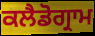
ਕਲੈਡੋਗ੍ਰਾਮ